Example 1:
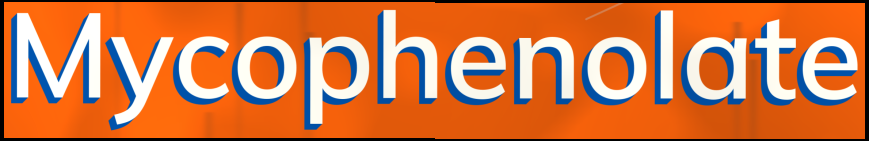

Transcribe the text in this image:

Mycophenolate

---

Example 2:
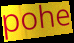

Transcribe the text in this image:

pohe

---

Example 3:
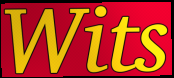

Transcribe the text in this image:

Wits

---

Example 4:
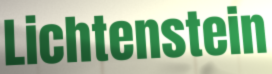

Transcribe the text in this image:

Lichtenstein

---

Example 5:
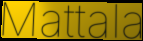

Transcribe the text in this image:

Mattala